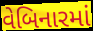
વેબિનારમાં